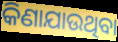
କିଣାଯାଉଥିବା